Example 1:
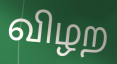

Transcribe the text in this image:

விழற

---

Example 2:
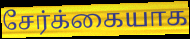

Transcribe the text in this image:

சேர்க்கையாக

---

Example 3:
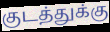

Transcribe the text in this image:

குடத்துக்கு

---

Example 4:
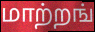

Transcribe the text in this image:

மாற்றங்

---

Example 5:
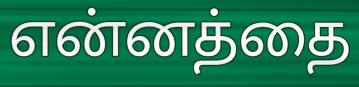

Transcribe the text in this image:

என்னத்தை